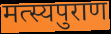
मत्स्यपुराण